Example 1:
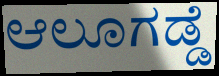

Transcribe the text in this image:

ಆಲೂಗಡ್ಡೆ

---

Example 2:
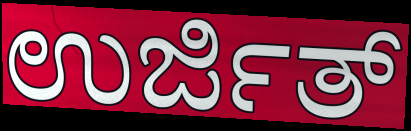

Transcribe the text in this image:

ಉರ್ಜಿತ್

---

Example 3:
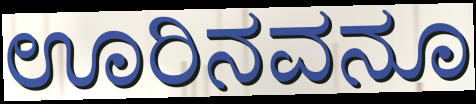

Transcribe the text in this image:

ಊರಿನವನೂ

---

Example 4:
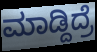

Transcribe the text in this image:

ಮಾಡ್ದಿದ್ರೆ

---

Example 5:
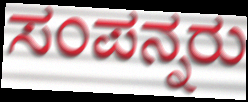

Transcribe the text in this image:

ಸಂಪನ್ನರು